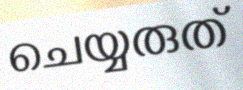
ചെയ്യരുത്